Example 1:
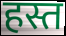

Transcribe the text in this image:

हस्त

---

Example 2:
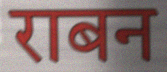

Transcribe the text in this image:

राबन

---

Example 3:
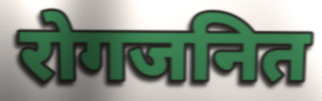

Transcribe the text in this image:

रोगजनित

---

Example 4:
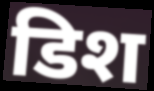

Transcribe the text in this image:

डिश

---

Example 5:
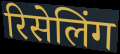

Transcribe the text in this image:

रिसेलिंग